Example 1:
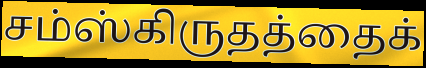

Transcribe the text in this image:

சம்ஸ்கிருதத்தைக்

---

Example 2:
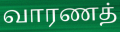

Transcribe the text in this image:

வாரணத்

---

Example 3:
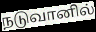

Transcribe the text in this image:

நடுவானில்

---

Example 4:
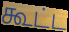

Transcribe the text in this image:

கூட்ட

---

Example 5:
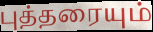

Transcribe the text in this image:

புத்தரையும்